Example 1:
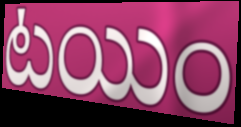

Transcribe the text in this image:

టయిం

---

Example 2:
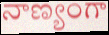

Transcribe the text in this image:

నాణ్యంగా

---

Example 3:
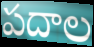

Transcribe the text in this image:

పదాల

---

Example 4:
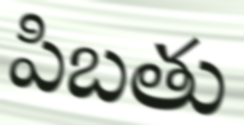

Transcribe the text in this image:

పిబతు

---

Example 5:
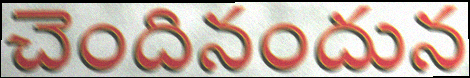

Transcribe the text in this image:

చెందినందున